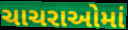
ચાચરાઓમાં